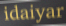
idaiyar